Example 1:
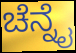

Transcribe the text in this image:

ಚೆನ್ನೈ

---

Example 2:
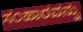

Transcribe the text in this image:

ಸಂಹಾರವನ್ನು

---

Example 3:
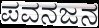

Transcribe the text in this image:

ಪವನಜನ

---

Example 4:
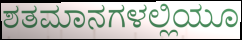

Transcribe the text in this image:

ಶತಮಾನಗಳಲ್ಲಿಯೂ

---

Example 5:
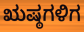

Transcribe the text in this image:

ಋಷ್ಠಗಳಿಗ